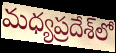
మధ్యప్రదేశ్‌లో